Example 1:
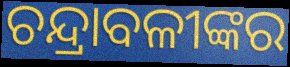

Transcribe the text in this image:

ଚନ୍ଦ୍ରାବଳୀଙ୍କର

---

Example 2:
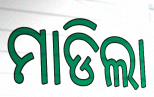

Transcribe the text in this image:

ମାଡିଲା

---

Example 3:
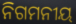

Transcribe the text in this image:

ନିଗମନୀୟ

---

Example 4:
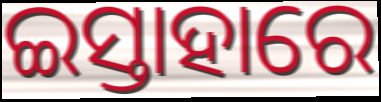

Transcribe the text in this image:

ଇସ୍ତାହାରେ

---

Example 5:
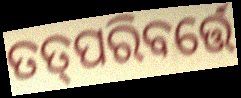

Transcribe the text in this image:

ତତ୍‌ପରିବର୍ତ୍ତେ